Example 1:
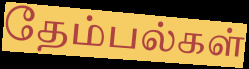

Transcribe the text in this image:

தேம்பல்கள்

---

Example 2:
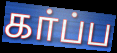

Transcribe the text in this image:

கர்ப்ப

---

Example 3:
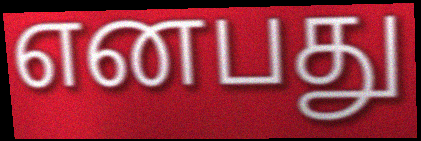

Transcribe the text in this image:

எனபது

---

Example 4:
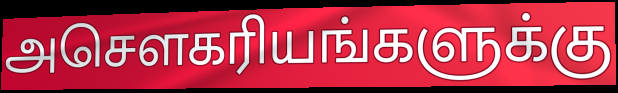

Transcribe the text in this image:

அசௌகரியங்களுக்கு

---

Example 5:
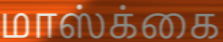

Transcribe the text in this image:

மாஸ்க்கை